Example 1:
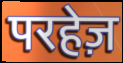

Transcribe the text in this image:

परहेज़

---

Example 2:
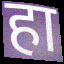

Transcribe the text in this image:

हा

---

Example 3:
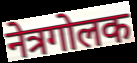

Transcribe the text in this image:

नेत्रगोलक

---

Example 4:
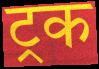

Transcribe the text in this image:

ट्रक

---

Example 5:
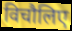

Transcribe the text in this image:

विचौलिए